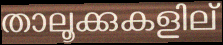
താലൂക്കുകളില്